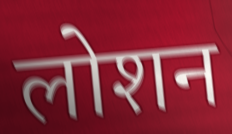
लोशन